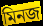
মিনজ